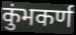
कुंभकर्ण